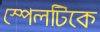
স্পেলটিকে